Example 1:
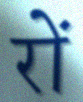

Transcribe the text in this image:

रों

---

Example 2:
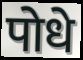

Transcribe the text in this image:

पोधे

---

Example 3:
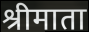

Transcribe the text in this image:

श्रीमाता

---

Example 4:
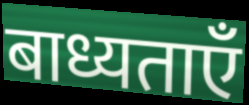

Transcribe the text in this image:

बाध्यताएँ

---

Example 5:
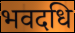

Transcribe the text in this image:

भवदधि